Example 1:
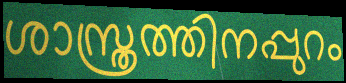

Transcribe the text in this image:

ശാസ്ത്രത്തിനപ്പുറം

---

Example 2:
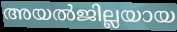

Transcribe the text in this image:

അയൽജില്ലയായ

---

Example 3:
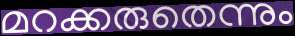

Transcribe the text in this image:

മറക്കരുതെന്നും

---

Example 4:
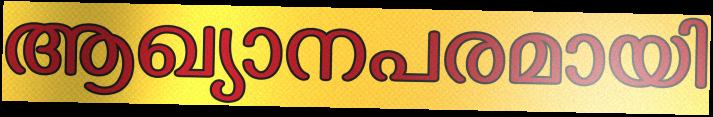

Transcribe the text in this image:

ആഖ്യാനപരമായി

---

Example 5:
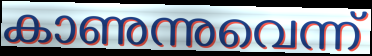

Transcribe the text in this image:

കാണുന്നുവെന്ന്